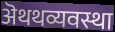
ऄथथव्यवस्था